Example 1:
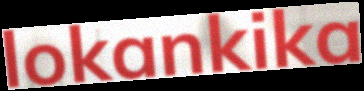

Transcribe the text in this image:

lokankika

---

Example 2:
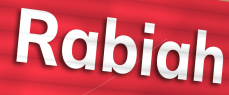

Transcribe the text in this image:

Rabiah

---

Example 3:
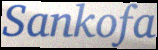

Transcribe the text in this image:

Sankofa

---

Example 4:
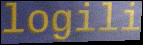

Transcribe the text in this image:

logili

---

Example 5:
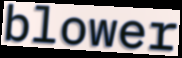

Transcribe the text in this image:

blower